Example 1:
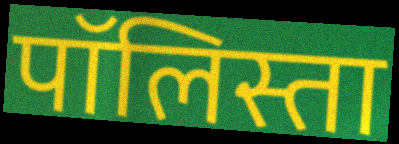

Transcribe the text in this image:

पॉलिस्ता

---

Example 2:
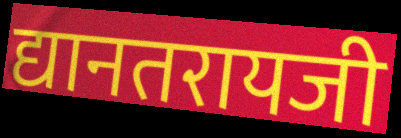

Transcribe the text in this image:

द्यानतरायजी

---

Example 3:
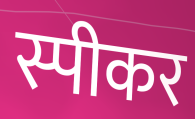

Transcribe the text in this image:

स्‍पीकर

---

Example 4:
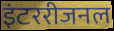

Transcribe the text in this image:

इंटररीजनल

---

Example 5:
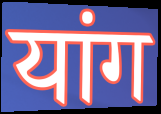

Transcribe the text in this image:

यांग